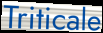
Triticale